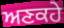
ਅਣਕਹੇ